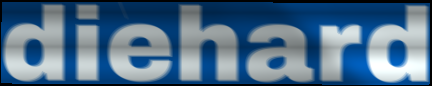
diehard